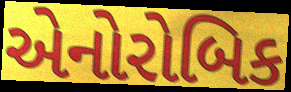
એનોરોબિક